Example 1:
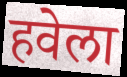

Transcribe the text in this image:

हवेला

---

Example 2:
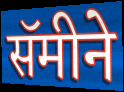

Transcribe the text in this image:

सॅमीने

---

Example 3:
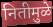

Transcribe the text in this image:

नितीमुळे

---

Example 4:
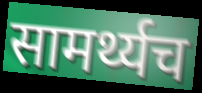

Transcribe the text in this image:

सामर्थ्यच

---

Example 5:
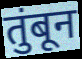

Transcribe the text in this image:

तुंबून